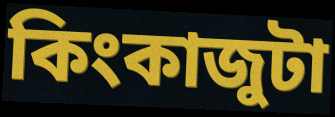
কিংকাজুটা